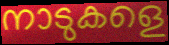
നാടുകളെ